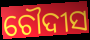
ଚୌଦୀସ